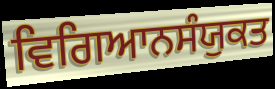
ਵਿਗਿਆਨਸੰਯੁਕਤ